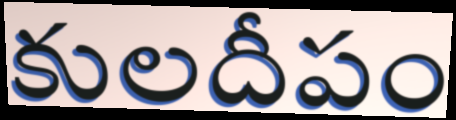
కులదీపం